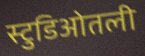
स्टुडिओतली